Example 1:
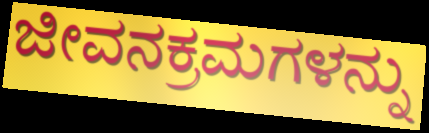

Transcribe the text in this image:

ಜೀವನಕ್ರಮಗಳನ್ನು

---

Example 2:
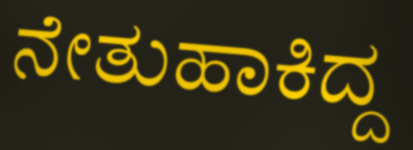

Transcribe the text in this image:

ನೇತುಹಾಕಿದ್ದ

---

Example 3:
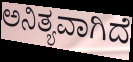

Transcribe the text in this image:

ಅನಿತ್ಯವಾಗಿದೆ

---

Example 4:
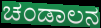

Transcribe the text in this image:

ಚಂಡಾಲನ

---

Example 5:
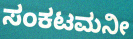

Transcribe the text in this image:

ಸಂಕಟಮನೀ